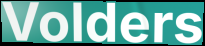
Volders